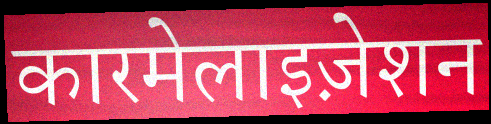
कारमेलाइज़ेशन